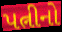
પત્નીનો